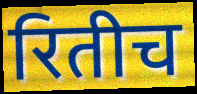
रितीच